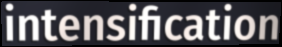
intensification